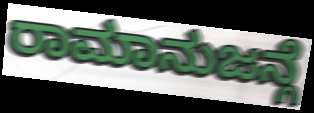
ರಾಮಾನುಜನ್ಗೆ